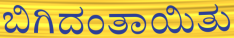
ಬಿಗಿದಂತಾಯಿತು